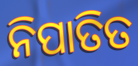
ନିପାତିତ